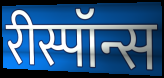
रीस्पॉन्स